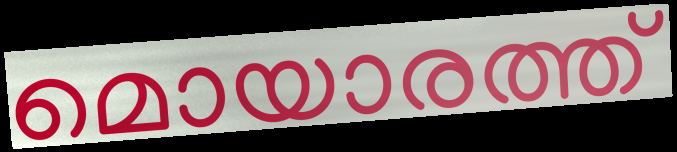
മൊയാരത്ത്